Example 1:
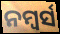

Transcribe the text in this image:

ନମ୍ୱର୍ସ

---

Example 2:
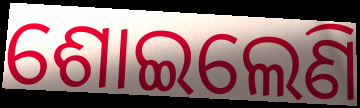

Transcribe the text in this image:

ଶୋଇଲେଣି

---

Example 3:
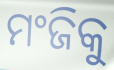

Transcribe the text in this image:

ମଂଜିକୁ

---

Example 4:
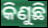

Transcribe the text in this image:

କିଣୁଛି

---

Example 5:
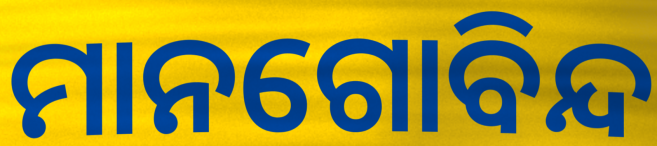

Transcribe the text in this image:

ମାନଗୋବିନ୍ଦ